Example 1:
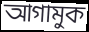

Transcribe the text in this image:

আগামুক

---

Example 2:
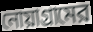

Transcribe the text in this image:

নোয়াগ্রামের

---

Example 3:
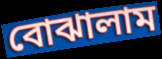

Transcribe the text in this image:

বোঝালাম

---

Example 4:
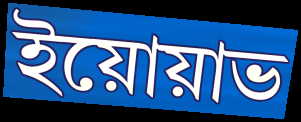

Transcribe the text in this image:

ইয়োয়াভ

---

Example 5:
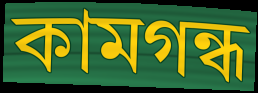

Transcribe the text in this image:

কামগন্ধ